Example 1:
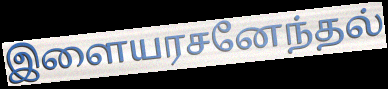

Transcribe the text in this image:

இளையரசனேந்தல்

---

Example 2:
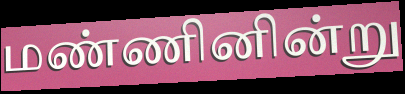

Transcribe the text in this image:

மண்ணினின்று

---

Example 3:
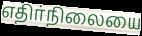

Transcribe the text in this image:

எதிர்நிலையை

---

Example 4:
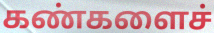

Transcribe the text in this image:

கண்களைச்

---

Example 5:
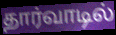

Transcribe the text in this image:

தார்வாடில்